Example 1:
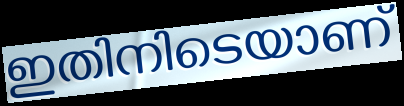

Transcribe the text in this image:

ഇതിനിടെയാണ്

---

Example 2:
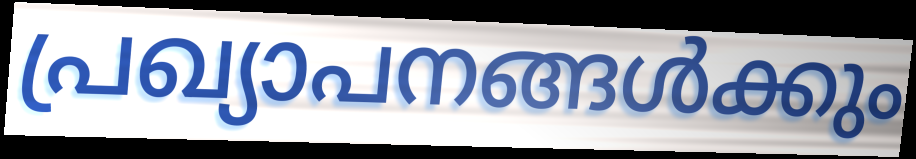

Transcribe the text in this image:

പ്രഖ്യാപനങ്ങൾക്കും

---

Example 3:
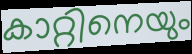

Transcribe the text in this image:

കാറ്റിനെയും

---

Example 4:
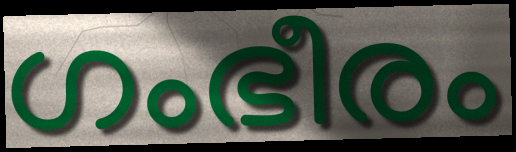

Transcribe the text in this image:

ഗംഭീരം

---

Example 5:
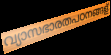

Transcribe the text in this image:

വ്യാസഭാരതപഠനങ്ങള്